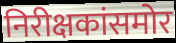
निरीक्षकांसमोर